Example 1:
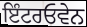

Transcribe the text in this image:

ਇੰਟਰਓਵੇਨ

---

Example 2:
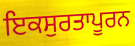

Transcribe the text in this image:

ਇਕਸੁਰਤਾਪੂਰਨ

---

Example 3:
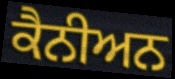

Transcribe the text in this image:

ਕੈਨੀਅਨ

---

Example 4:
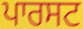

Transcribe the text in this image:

ਪਾਰਸਟ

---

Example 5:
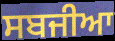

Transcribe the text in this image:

ਸਬਜੀਆ